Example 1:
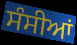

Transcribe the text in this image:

ਸੰਸੀਆਂ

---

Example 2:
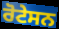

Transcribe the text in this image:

ਰੋਟੇਸਨ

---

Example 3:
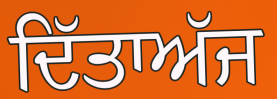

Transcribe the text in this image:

ਦਿੱਤਾਅੱਜ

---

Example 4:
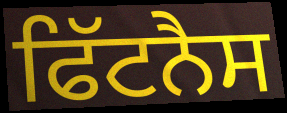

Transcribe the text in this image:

ਫਿੱਟਨੈਸ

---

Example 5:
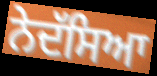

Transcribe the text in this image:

ਨੇਦੱਸਿਆ